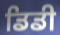
ਡਿਡੀ